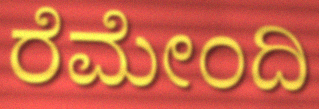
ರೆಮೇಂದಿ